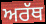
ਅਰੱਥ